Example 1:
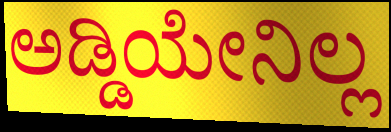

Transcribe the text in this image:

ಅಡ್ಡಿಯೇನಿಲ್ಲ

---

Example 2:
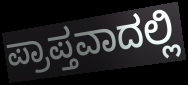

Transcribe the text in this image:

ಪ್ರಾಪ್ತವಾದಲ್ಲಿ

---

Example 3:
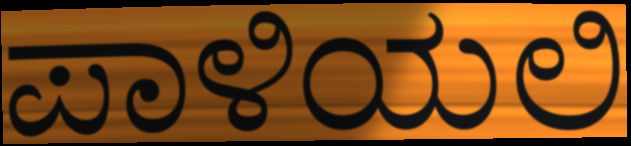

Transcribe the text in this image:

ಪಾಳಿಯಲಿ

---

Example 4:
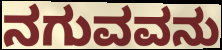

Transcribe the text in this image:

ನಗುವವನು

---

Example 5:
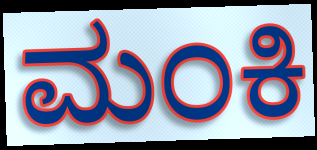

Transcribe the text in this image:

ಮಂಕಿ